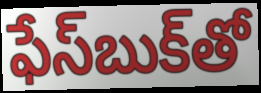
ఫేస్‌బుక్‌తో